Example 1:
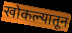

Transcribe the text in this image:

खोकल्यातून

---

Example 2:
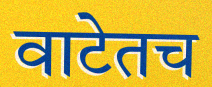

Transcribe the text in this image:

वाटेतच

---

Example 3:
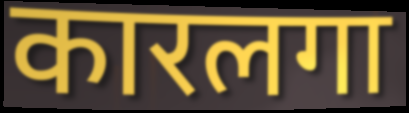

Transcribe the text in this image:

कारलगा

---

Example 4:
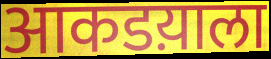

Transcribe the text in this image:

आकडय़ाला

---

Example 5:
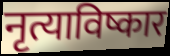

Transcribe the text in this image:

नृत्याविष्कार